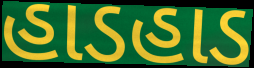
હાડહાડ